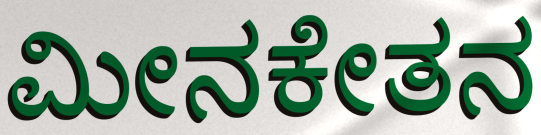
ಮೀನಕೇತನ